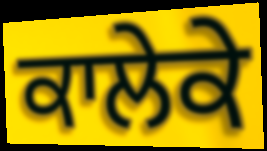
ਕਾਲੇਕੇ